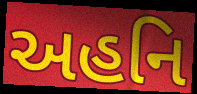
અહનિ